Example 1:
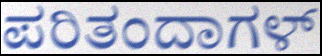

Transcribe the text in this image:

ಪರಿತಂದಾಗಳ್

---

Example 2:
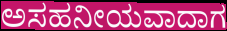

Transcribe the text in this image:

ಅಸಹನೀಯವಾದಾಗ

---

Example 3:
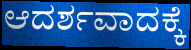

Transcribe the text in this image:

ಆದರ್ಶವಾದಕ್ಕೆ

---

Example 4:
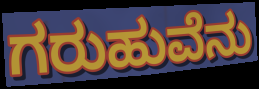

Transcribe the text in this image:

ಗರುಹುವೆನು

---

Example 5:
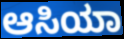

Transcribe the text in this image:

ಆಸಿಯಾ